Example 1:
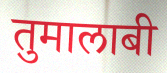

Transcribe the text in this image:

तुमालाबी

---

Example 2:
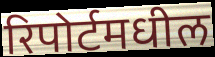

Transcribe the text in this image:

रिपोर्टमधील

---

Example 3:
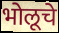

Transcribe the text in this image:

भोलूचे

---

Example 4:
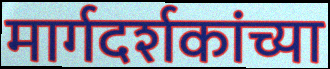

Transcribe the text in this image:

मार्गदर्शकांच्या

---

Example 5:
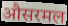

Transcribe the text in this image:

औसरमल